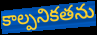
కాల్పనికతను